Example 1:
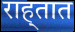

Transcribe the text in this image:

राह्तात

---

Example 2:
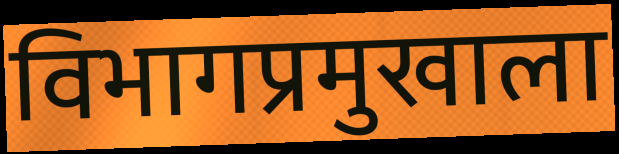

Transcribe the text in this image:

विभागप्रमुखाला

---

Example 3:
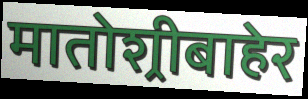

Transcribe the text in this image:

मातोश्रीबाहेर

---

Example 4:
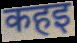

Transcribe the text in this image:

कहइ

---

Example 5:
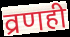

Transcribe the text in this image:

व्रणही